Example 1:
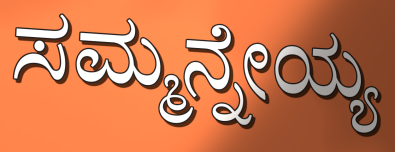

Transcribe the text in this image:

ಸಮ್ಮನ್ನೇಯ್ಯ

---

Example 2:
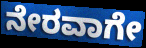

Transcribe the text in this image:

ನೇರವಾಗೇ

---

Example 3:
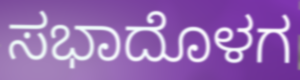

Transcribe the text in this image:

ಸಭಾದೊಳಗ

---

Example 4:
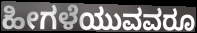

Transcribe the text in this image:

ಹೀಗಳೆಯುವವರೂ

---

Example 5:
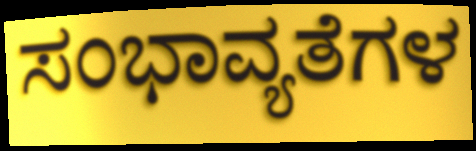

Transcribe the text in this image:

ಸಂಭಾವ್ಯತೆಗಳ